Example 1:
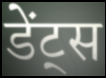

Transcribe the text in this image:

डेंट्स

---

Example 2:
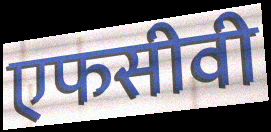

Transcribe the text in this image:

एफसीवी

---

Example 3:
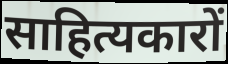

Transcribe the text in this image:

साहित्यकारों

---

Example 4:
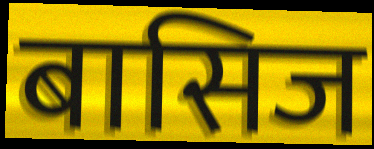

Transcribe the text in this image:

बासिज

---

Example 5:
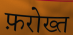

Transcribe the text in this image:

फ़रोख्त